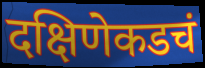
दक्षिणेकडचं